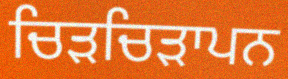
ਚਿੜਚਿੜਾਪਨ